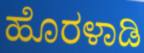
ಹೊರಳಾಡಿ